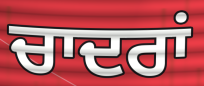
ਚਾਦਰਾਂ